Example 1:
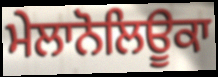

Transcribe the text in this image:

ਮੇਲਾਨੋਲਿਊਕਾ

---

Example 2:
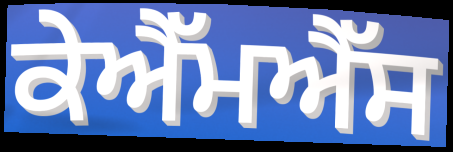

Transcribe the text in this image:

ਕੇਐੱਮਐੱਸ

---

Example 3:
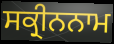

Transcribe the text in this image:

ਸਕ੍ਰੀਨਨਾਮ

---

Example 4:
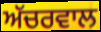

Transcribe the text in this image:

ਅੱਚਰਵਾਲ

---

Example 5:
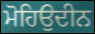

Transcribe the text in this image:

ਮੋਹਿਉਦੀਨ